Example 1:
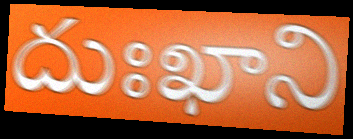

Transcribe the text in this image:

దుఃఖాని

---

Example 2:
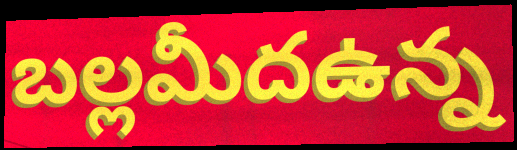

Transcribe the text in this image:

బల్లమీదఉన్న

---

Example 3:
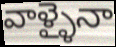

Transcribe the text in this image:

వాళ్ళైనా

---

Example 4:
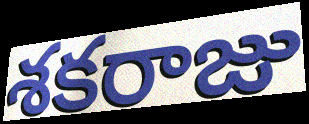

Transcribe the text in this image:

శకరాజు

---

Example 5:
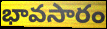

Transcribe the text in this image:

భావసారం